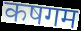
कषगम